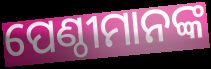
ପେଣ୍ଠୀମାନଙ୍କ